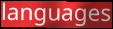
languages